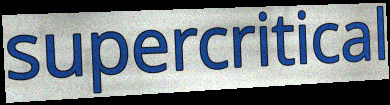
supercritical